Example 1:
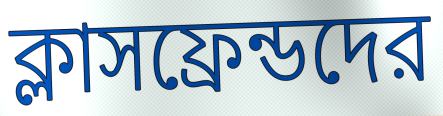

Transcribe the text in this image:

ক্লাসফ্রেন্ডদের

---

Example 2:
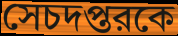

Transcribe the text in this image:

সেচদপ্তরকে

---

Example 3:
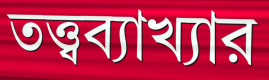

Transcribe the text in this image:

তত্ত্বব্যাখ্যার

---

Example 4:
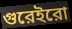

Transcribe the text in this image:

গুরেইরো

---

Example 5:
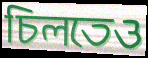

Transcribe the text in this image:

চিলতেও